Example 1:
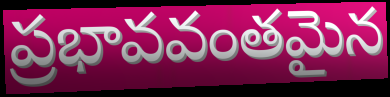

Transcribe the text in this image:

ప్రభావవంతమైన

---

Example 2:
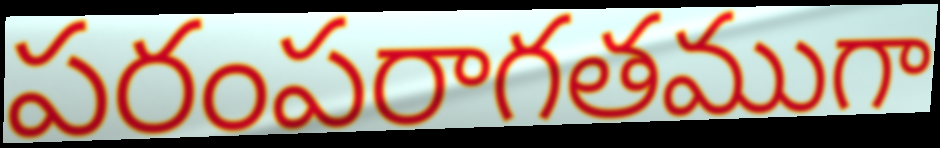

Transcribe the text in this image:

పరంపరాగతముగా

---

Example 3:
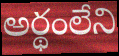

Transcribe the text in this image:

అర్థంలేని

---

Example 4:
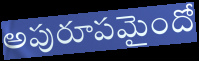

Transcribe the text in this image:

అపురూపమైందో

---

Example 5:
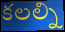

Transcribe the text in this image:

కలల్ని